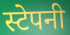
स्टेपनी